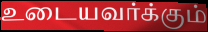
உடையவர்க்கும்